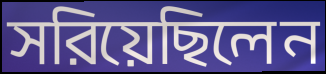
সরিয়েছিলেন